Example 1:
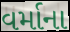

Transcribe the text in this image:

વર્માના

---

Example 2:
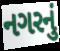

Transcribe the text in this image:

નગરનું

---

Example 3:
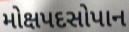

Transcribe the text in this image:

મોક્ષપદસોપાન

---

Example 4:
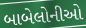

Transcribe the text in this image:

બાબેલોનીઓ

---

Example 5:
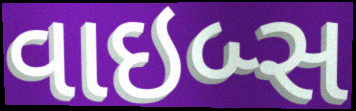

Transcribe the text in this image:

વાઇબ્સ